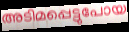
അടിമപ്പെട്ടുപോയ